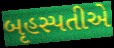
બૃહસ્પતીએ